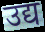
उद्य